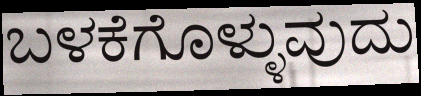
ಬಳಕೆಗೊಳ್ಳುವುದು